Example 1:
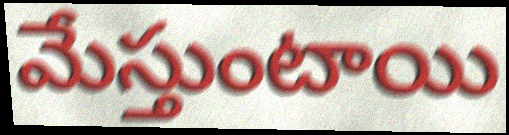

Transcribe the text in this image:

మేస్తుంటాయి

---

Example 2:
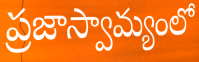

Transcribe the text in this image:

ప్రజాస్వామ్యంలో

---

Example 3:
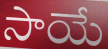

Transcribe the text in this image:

సాయే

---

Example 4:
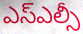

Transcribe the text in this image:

ఎస్ఎల్సీ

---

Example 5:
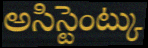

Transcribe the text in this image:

అసిస్టెంట్కు